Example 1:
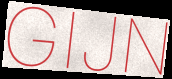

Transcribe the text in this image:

GIJN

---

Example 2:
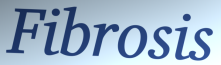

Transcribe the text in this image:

Fibrosis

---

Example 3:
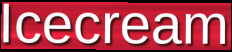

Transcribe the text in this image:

Icecream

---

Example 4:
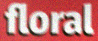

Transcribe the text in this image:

floral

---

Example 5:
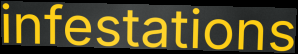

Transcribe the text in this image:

infestations